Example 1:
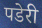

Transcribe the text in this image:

पडेरी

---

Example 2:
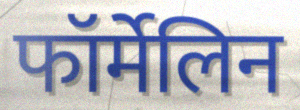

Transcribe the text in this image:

फॉर्मेलिन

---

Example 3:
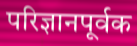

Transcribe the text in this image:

परिज्ञानपूर्वक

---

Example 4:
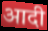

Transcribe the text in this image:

आदी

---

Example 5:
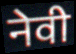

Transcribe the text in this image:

नेवी